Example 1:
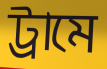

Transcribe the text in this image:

ট্রামে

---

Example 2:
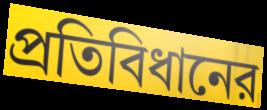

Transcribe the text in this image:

প্রতিবিধানের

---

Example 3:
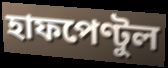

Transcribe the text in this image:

হাফপেণ্টুল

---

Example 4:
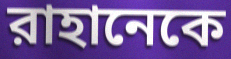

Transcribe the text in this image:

রাহানেকে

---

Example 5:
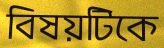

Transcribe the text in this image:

বিষয়টিকে